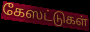
கேஸட்டுகள்